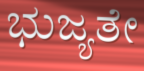
ಭುಜ್ಯತೇ